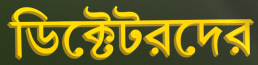
ডিক্টেটরদের